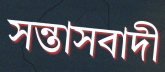
সন্তাসবাদী